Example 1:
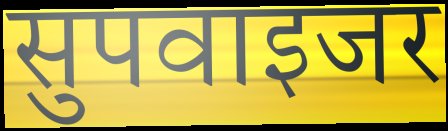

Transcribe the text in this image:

सुपवाइजर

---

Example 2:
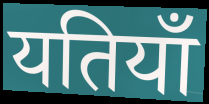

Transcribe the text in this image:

यतियाँ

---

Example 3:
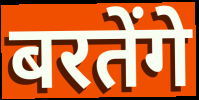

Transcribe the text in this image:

बरतेंगे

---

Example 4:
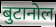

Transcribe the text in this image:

बुटानोल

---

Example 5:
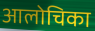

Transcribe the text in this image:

आलोचिका